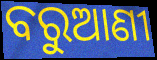
ବରୁଆଣୀ